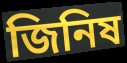
জিনিষ